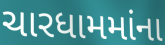
ચારધામમાંના